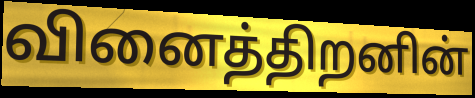
வினைத்திறனின்